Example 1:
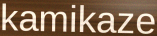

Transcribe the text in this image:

kamikaze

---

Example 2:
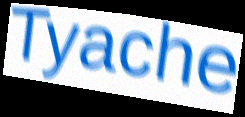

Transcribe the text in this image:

Tyache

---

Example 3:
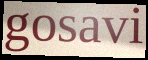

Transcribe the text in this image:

gosavi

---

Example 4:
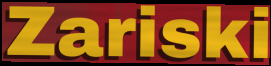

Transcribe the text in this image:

Zariski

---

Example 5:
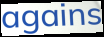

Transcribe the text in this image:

agains